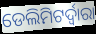
ଡେଲିମିଟର୍ଦ୍ୱାରା